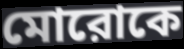
মোরোকে